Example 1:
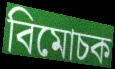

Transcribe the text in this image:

বিমোচক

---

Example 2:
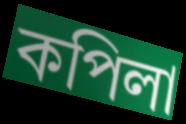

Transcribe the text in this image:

কপিলা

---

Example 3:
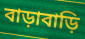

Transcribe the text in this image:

বাড়াবাড়ি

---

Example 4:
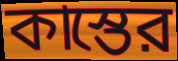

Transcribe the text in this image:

কাস্তের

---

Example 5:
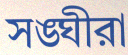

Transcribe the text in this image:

সঙ্ঘীরা